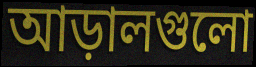
আড়ালগুলো